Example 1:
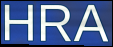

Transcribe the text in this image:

HRA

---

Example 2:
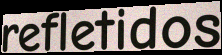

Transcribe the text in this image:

refletidos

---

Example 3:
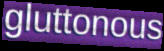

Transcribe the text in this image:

gluttonous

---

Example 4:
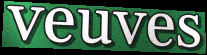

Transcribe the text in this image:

veuves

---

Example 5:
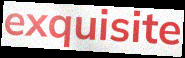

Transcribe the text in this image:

exquisite